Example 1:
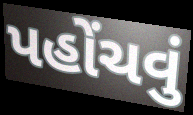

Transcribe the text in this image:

પહોંચવું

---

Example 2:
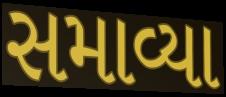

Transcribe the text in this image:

સમાવ્યા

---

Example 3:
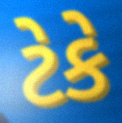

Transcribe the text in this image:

ટેકે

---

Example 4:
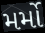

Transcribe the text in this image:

મર્મો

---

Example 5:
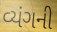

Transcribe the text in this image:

વ્યંગની